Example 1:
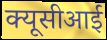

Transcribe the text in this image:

क्यूसीआई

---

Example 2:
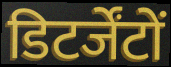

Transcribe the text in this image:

डिटर्जेंटों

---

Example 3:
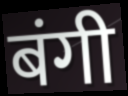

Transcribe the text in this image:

बंगी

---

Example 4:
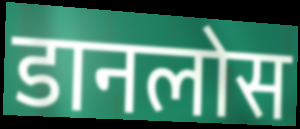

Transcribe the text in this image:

डानलोस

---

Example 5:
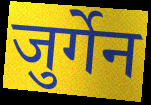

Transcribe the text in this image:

जुर्गेन